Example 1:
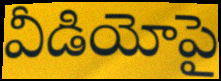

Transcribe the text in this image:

వీడియోపై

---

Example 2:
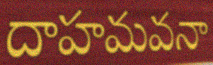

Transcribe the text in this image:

దాహమవనా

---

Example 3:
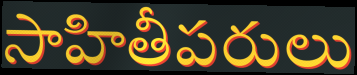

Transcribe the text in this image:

సాహితీపరులు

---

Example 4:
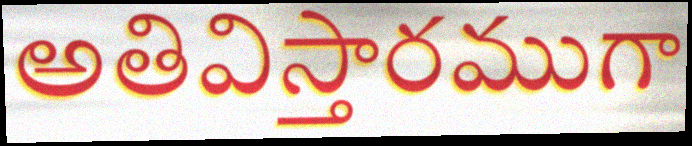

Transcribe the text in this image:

అతివిస్తారముగా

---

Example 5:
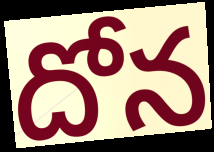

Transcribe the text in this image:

దోన